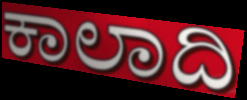
ಕಾಲಾದಿ